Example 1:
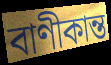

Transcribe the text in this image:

বাণীকান্ত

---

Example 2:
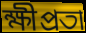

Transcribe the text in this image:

ক্ষীপ্ৰতা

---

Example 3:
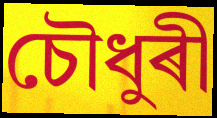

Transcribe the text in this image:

চৌধুৰী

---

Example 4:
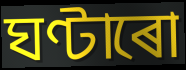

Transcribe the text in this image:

ঘণ্টাৰো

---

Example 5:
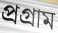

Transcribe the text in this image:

প্ৰগ্ৰাম